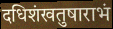
दधिशंखतुषाराभं